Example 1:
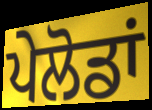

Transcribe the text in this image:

ਪੇਲੋਡਾਂ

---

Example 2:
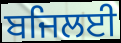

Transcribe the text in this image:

ਬਜਿਲਈ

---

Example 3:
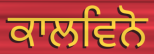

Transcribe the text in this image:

ਕਾਲਵਿਨੋ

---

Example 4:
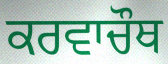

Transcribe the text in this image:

ਕਰਵਾਚੌਥ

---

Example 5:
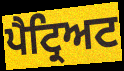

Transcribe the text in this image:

ਪੈਟ੍ਰਿਅਟ